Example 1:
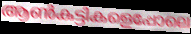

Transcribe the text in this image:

ആൺകുട്ടികളെപ്പോലെ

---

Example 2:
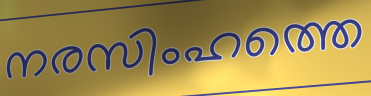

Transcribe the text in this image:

നരസിംഹത്തെ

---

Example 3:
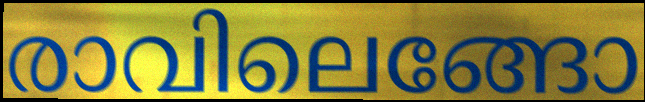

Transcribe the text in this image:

രാവിലെങ്ങോ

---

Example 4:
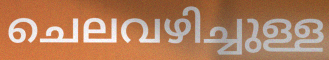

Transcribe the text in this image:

ചെലവഴിച്ചുള്ള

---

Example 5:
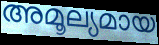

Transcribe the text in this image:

അമൂല്യമായ